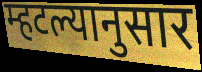
म्हटल्यानुसार